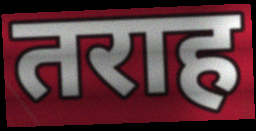
तराह